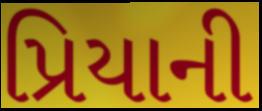
પ્રિયાની